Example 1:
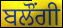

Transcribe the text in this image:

ਬਲੌਂਗੀ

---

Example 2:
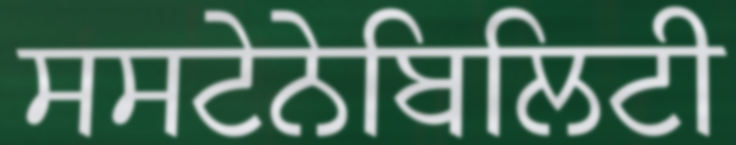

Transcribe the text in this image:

ਸਸਟੇਨੇਬਿਲਿਟੀ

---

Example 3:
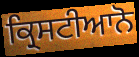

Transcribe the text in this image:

ਕ੍ਰਿਸਟੀਆਨੋ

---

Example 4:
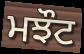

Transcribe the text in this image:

ਮਝੌਟ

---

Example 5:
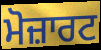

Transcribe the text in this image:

ਮੋਜ਼ਾਰਟ